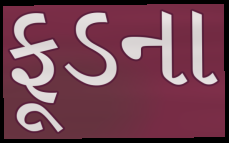
ફૂડના